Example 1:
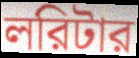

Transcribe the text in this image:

লরিটার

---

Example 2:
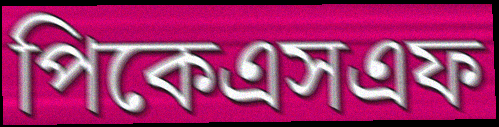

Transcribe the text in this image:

পিকেএসএফ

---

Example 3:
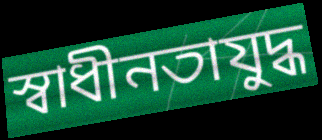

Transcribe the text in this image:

স্বাধীনতাযুদ্ধ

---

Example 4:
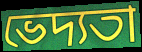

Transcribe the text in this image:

ভেদ্যতা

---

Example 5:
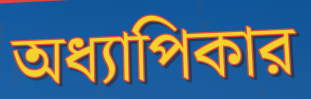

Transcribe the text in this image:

অধ্যাপিকার